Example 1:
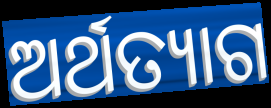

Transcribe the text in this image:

ଅର୍ଥତ୍ୟାଗ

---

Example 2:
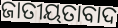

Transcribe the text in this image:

ଜାତୀୟତାବାଦ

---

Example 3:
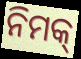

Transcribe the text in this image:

ନିମକ୍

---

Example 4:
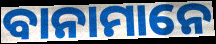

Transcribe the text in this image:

ବାନାମାନେ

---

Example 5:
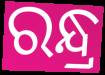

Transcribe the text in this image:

ରନ୍ଧ୍ର